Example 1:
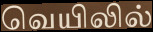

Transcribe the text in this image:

வெயிலில்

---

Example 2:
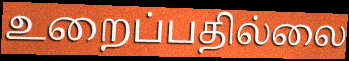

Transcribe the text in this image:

உறைப்பதில்லை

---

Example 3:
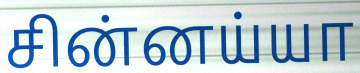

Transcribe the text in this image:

சின்னய்யா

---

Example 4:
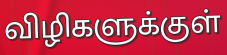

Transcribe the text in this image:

விழிகளுக்குள்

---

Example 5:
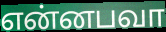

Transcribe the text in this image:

என்னபவா